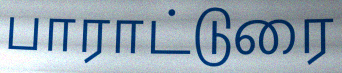
பாராட்டுரை